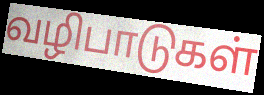
வழிபாடுகள்